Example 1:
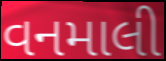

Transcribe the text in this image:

વનમાલી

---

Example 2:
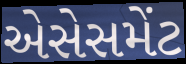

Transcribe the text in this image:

એસેસમેંટ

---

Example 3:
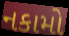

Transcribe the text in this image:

નકામો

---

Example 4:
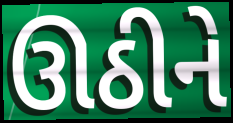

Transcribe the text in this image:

ઊઠીને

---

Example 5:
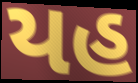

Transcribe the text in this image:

યહ